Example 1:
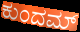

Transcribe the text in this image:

ಕುಂದಮ್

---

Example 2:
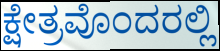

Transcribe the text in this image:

ಕ್ಷೇತ್ರವೊಂದರಲ್ಲಿ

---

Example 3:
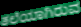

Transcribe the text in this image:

ತಲೆಯಾಗಿರುವ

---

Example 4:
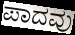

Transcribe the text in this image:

ಪಾದವು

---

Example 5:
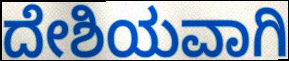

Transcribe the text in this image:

ದೇಶಿಯವಾಗಿ